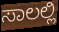
ಸಾಲಲ್ಲಿ